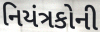
નિયંત્રકોની